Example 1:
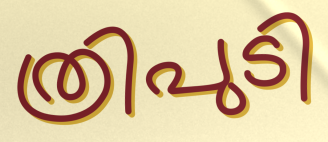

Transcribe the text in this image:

ത്രിപുടി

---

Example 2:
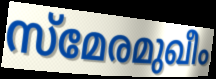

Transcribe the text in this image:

സ്മേരമുഖീം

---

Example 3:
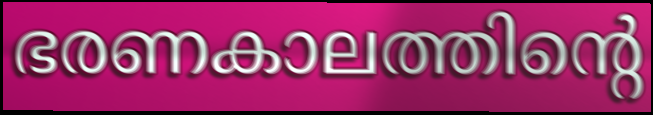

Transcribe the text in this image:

ഭരണകാലത്തിന്റെ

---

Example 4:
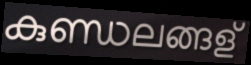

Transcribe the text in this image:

കുണ്ഡലങ്ങള്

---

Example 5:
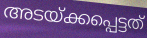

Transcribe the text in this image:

അടയ്ക്കപ്പെട്ടത്